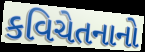
કવિચેતનાનો